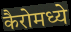
कैरोमध्ये